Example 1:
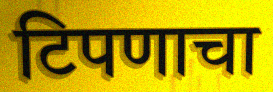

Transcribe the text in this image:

टिपणाचा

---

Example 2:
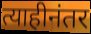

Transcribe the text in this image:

त्याहीनंतर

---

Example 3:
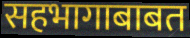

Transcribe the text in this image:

सहभागाबाबत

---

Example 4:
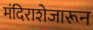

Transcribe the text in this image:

मंदिराशेजारून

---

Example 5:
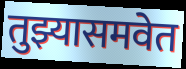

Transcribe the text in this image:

तुझ्यासमवेत